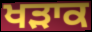
ਖੜਾਕ